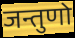
जन्तुणो